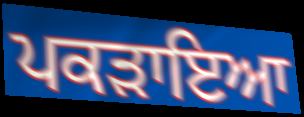
ਪਕੜਾਇਆ